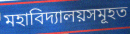
মহাবিদ্যালয়সমূহত